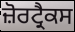
ਜ਼ੋਰਟ੍ਰੈਕਸ